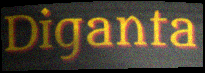
Diganta